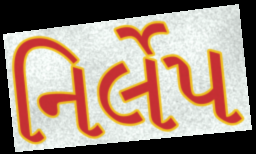
નિર્લેપ